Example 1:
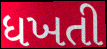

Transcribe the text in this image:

ધખતી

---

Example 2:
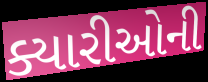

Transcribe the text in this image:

ક્યારીઓની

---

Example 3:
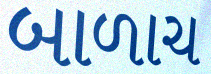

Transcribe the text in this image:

બાળાચ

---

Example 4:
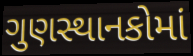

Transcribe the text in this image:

ગુણસ્થાનકોમાં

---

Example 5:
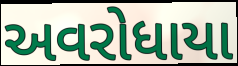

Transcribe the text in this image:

અવરોધાયા